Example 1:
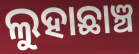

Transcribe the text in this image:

ଲୁହାଛାଞ୍ଚ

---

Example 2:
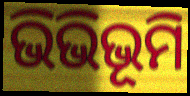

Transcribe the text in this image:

ଭିଭିଭୂମି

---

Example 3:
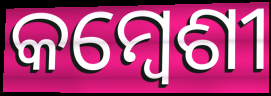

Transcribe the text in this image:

କମ୍ବେଶୀ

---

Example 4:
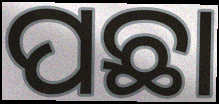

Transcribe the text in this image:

ପଛା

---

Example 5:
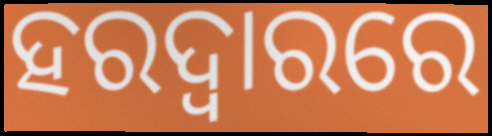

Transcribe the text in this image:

ହରଦ୍ୱାରରେ